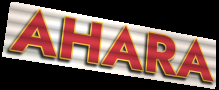
AHARA